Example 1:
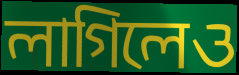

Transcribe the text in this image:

লাগিলেও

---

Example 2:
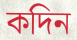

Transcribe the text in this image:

কদিন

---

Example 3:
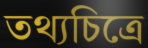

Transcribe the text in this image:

তথ্যচিত্রে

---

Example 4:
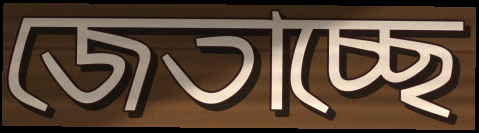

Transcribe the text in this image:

জেতাচ্ছে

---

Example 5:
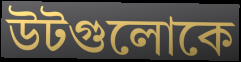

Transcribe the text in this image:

উটগুলোকে